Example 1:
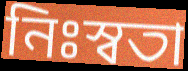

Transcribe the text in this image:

নিঃস্বতা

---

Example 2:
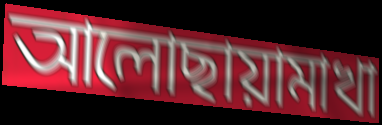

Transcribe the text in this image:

আলোছায়ামাখা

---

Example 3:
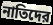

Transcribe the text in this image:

নাতিদের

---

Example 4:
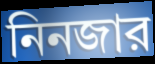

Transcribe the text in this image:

নিনজার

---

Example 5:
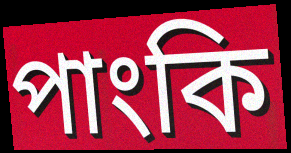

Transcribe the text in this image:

পাংকি